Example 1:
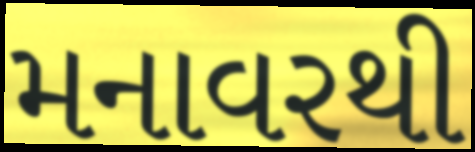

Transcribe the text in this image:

મનાવરથી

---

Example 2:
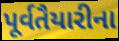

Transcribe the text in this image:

પૂર્વતૈયારીના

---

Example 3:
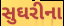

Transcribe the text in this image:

સુઘરીના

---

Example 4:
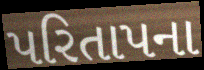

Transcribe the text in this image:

પરિતાપના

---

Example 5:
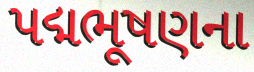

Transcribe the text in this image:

પદ્મભૂષણના